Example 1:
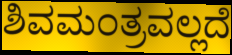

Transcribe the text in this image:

ಶಿವಮಂತ್ರವಲ್ಲದೆ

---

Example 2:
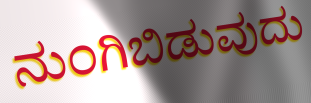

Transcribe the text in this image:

ನುಂಗಿಬಿಡುವುದು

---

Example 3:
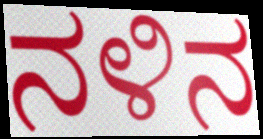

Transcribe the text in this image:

ನಳಿನ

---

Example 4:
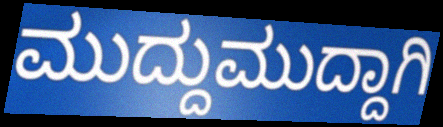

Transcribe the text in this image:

ಮುದ್ದುಮುದ್ದಾಗಿ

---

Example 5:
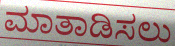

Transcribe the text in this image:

ಮಾತಾಡಿಸಲು